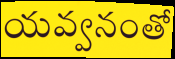
యవ్వనంతో